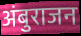
अंबुराजन